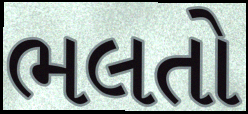
ભલતો